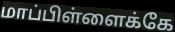
மாப்பிள்ளைக்கே